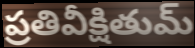
ప్రతివీక్షితుమ్